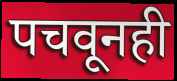
पचवूनही